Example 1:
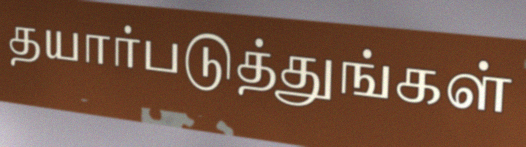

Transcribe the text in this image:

தயார்படுத்துங்கள்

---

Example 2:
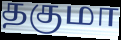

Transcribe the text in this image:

தகுமா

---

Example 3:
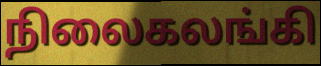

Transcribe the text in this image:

நிலைகலங்கி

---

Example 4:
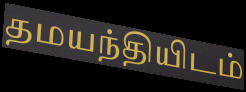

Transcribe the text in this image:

தமயந்தியிடம்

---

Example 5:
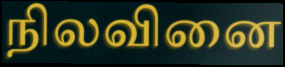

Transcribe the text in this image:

நிலவினை